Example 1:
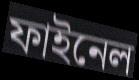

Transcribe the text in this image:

ফাইনেল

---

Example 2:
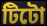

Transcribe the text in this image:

টিটো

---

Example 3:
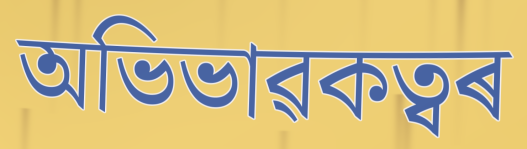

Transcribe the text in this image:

অভিভাৱকত্বৰ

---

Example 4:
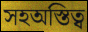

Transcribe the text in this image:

সহঅস্তিত্ব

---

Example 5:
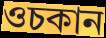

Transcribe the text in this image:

ওচকান